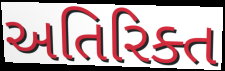
અતિરિક્ત